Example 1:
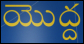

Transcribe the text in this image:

యొద్ద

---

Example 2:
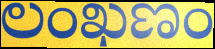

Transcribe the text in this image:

లంఖణం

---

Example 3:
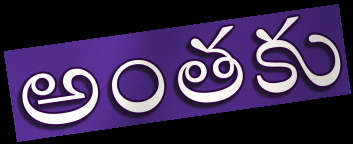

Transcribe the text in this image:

అంతకు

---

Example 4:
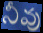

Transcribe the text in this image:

నీవు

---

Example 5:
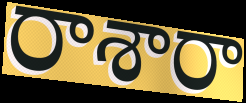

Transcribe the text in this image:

రాశారా